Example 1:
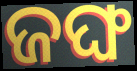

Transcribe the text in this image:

ଜଙ୍ଘ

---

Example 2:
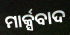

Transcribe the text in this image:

ମାର୍କ୍ସବାଦ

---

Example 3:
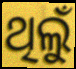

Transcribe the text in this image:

ଥିଲୁଁ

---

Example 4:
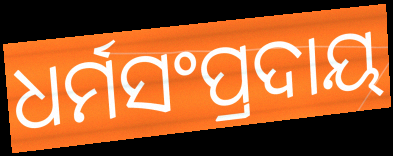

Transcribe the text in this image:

ଧର୍ମସଂପ୍ରଦାୟ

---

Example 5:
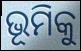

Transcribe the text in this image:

ଭୂମିକୁ